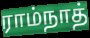
ராம்நாத்